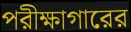
পরীক্ষাগারের